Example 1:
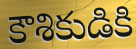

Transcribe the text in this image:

కౌశికుడికి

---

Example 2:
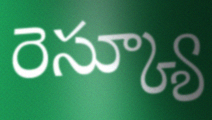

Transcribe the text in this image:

రెస్క్యూ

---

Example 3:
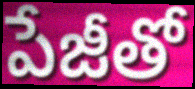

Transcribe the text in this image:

పేజీతో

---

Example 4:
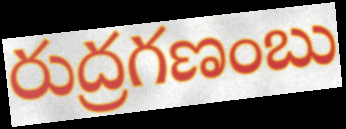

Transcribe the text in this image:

రుద్రగణంబు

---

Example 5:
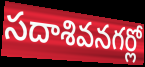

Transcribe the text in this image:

సదాశివనగర్లో